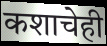
कशाचेही